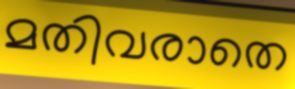
മതിവരാതെ